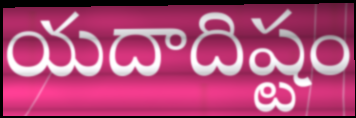
యదాదిష్టం